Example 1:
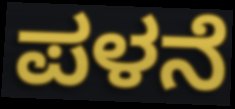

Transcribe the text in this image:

ಪಳನೆ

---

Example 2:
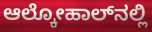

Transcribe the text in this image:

ಆಲ್ಕೋಹಾಲ್‌ನಲ್ಲಿ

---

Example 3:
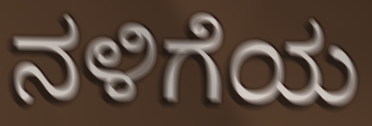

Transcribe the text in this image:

ನಳಿಗೆಯ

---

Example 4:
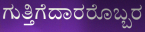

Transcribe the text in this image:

ಗುತ್ತಿಗೆದಾರರೊಬ್ಬರ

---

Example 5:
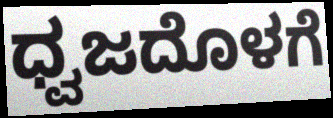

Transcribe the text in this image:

ಧ್ವಜದೊಳಗೆ